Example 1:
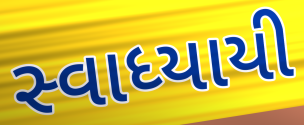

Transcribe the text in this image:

સ્વાધ્યાયી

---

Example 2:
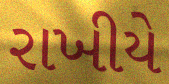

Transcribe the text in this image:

રાખીયે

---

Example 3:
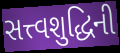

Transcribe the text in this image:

સત્ત્વશુદ્ધિની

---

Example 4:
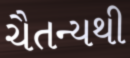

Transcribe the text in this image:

ચૈતન્યથી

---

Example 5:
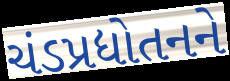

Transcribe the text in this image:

ચંડપ્રદ્યોતનને